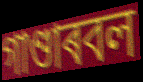
গাণ্ডাৰবল